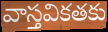
వాస్తవికతకు